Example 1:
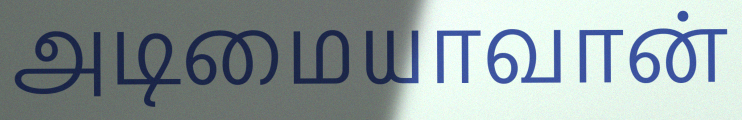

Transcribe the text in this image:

அடிமையாவான்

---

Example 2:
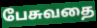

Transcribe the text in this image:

பேசுவதை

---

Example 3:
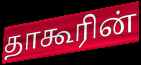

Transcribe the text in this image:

தாகூரின்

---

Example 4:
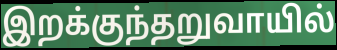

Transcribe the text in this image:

இறக்குந்தறுவாயில்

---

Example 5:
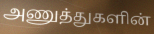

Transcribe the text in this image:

அணுத்துகளின்